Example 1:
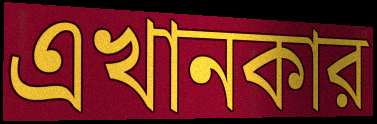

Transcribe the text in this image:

এখানকার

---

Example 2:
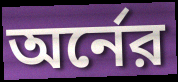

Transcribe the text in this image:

অর্নের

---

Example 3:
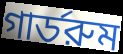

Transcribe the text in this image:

গার্ডরুম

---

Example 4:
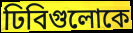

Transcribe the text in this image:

ঢিবিগুলোকে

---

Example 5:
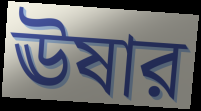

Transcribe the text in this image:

ঊষার